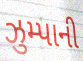
ઝુમ્પાની